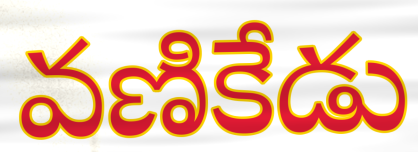
వణికేడు